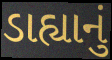
ડાહ્યાનું